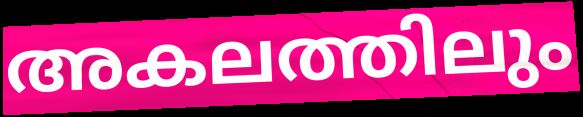
അകലത്തിലും